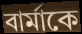
বার্মাকে